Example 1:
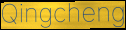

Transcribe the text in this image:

Qingcheng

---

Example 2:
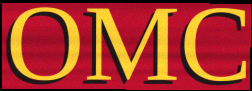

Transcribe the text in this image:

OMC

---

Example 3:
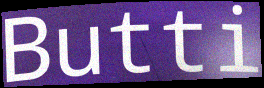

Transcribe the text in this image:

Butti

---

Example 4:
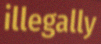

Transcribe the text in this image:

illegally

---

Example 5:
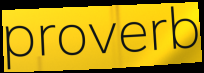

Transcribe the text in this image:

proverb